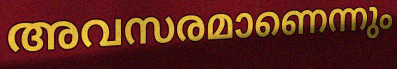
അവസരമാണെന്നും